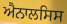
ਐਨਾਲਸਿਸ